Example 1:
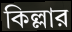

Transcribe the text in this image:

কিল্লার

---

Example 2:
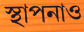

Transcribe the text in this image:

স্থাপনাও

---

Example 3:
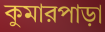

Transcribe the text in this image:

কুমারপাড়া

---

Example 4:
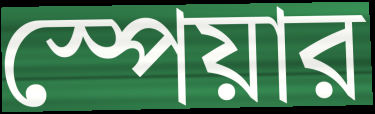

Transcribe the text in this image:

স্পেয়ার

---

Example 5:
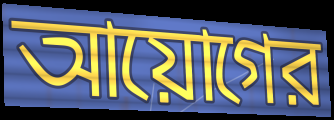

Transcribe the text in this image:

আয়োগের